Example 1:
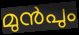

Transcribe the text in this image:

മുൻപും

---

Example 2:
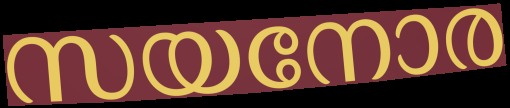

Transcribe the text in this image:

സയനോര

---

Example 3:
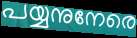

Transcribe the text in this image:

പയ്യനുനേരെ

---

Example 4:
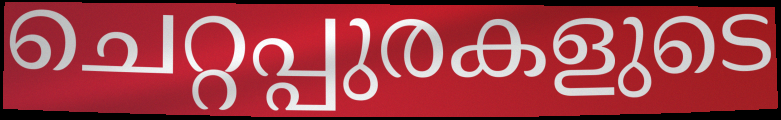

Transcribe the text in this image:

ചെറ്റപ്പുരകളുടെ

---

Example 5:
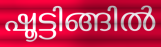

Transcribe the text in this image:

ഷൂട്ടിങ്ങിൽ